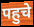
पहुचे